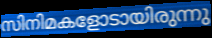
സിനിമകളോടായിരുന്നു